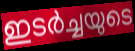
ഇടർച്ചയുടെ